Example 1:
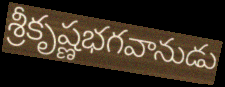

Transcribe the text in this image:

శ్రీకృష్ణభగవానుడు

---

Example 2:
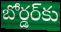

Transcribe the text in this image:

బోర్డర్‌కు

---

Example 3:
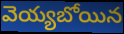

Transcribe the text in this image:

వెయ్యబోయిన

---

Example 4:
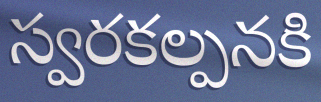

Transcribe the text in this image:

స్వరకల్పనకి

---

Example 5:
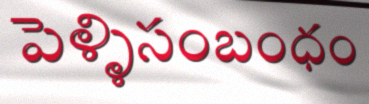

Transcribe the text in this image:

పెళ్ళిసంబంధం